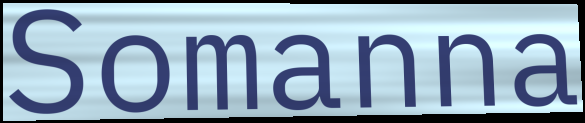
Somanna